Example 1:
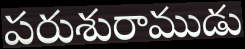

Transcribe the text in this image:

పరుశురాముడు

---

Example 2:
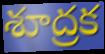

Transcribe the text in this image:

శూద్రక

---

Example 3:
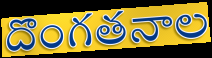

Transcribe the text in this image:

దొంగతనాల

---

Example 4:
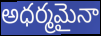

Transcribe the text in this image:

అధర్మమైనా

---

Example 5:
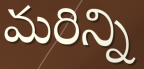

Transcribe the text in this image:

మరిన్ని